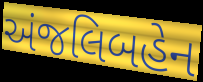
અંજલિબહેન